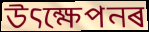
উৎক্ষেপনৰ